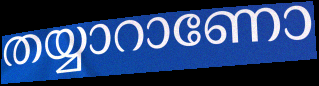
തയ്യാറാണോ